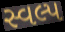
સ્વલ્પ